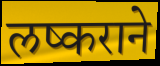
लष्कराने